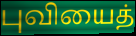
புவியைத்